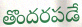
తొందరపడే